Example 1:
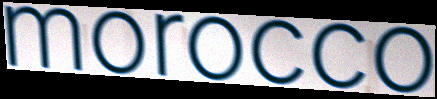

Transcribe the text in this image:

morocco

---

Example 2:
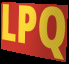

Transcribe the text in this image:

LPQ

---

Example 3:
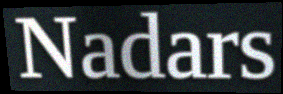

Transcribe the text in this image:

Nadars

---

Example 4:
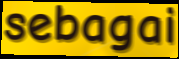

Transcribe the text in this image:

sebagai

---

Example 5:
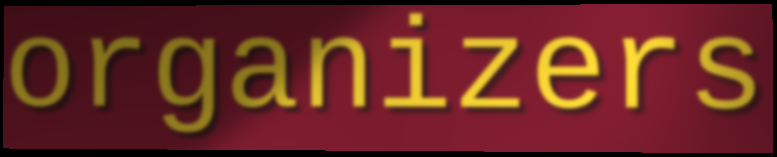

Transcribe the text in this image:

organizers